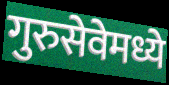
गुरुसेवेमध्ये